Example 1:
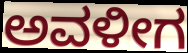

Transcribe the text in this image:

ಅವಳೀಗ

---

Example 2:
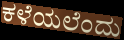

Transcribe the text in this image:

ಕಳೆಯಲೆಂದು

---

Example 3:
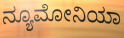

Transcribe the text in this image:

ನ್ಯೂಮೋನಿಯಾ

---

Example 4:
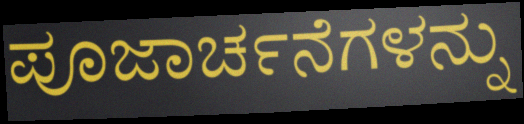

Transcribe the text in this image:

ಪೂಜಾರ್ಚನೆಗಳನ್ನು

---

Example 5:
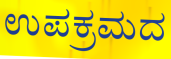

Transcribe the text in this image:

ಉಪಕ್ರಮದ